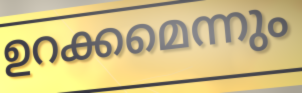
ഉറക്കമെന്നും